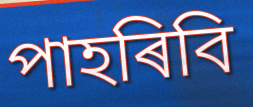
পাহৰিবি